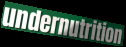
undernutrition